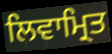
ਲਿਵਾਮ੍ਰਿਤ